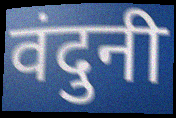
वंदुनी